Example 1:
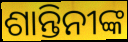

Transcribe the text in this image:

ଶାନ୍ତିନୀଙ୍କ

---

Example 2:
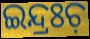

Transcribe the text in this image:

ଇନ୍ଦ୍ରଃଚ଼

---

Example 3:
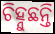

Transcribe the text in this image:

ଚିହ୍ନୁଛନ୍ତି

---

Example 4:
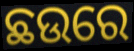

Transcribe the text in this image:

ଛଉରେ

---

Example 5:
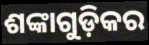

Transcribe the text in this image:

ଶଙ୍କାଗୁଡ଼ିକର